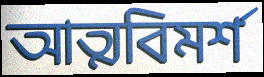
আত্মবিমর্শ